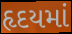
હૃદયમાં